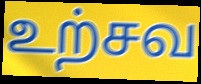
உற்சவ